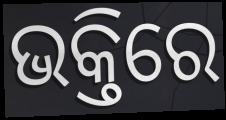
ଭକ୍ତିରେ